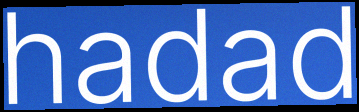
hadad